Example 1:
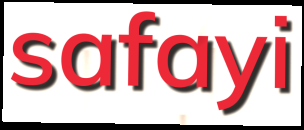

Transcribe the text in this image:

safayi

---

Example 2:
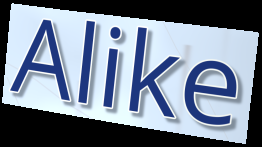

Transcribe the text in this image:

Alike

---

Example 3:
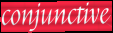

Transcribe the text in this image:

conjunctive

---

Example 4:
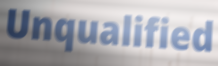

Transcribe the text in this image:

Unqualified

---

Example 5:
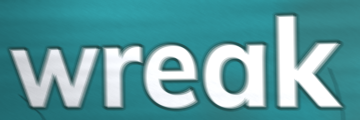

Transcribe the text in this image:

wreak